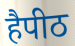
हैपीठ